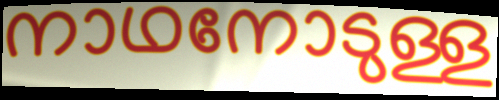
നാഥനോടുള്ള